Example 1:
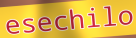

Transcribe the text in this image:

esechilo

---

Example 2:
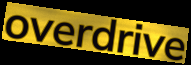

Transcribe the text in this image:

overdrive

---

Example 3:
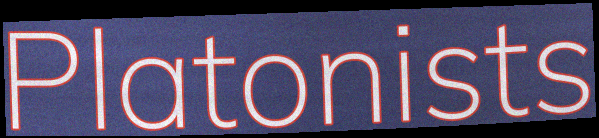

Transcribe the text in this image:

Platonists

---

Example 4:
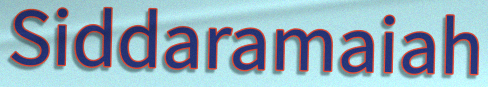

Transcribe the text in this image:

Siddaramaiah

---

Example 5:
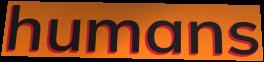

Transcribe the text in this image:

humans